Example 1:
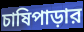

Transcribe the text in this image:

চাষিপাড়ার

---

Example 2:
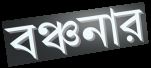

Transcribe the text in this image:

বঞ্চনার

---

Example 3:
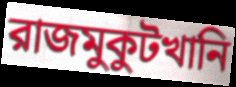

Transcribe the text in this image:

রাজমুকুটখানি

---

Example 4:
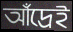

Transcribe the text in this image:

আঁদ্রেই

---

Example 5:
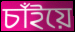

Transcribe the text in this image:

চাঁইয়ে